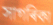
সাগৰিকা